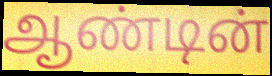
ஆண்டின்